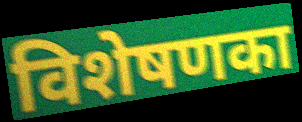
विशेषणका